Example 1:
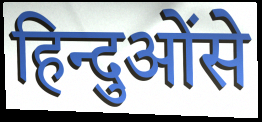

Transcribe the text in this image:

हिन्दुओंसे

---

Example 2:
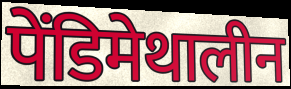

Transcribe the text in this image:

पेंडिमेथालीन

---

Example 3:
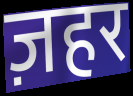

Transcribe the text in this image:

ज़हर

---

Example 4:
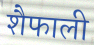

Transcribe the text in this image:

शैफाली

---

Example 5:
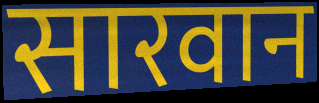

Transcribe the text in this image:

सारवान